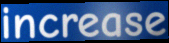
increase